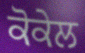
ਕੋਕੇਲ